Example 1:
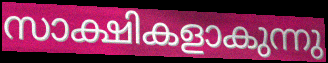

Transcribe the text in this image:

സാക്ഷികളാകുന്നു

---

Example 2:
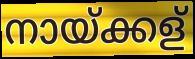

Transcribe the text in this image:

നായ്ക്കള്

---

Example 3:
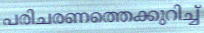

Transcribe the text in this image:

പരിചരണത്തെക്കുറിച്ച്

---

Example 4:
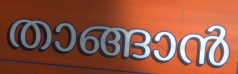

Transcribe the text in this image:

താങ്ങാൻ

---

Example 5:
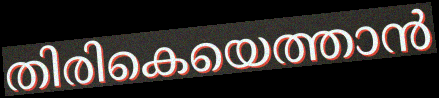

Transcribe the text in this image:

തിരികെയെത്താൻ